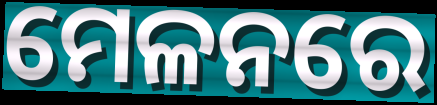
ମେଳନରେ